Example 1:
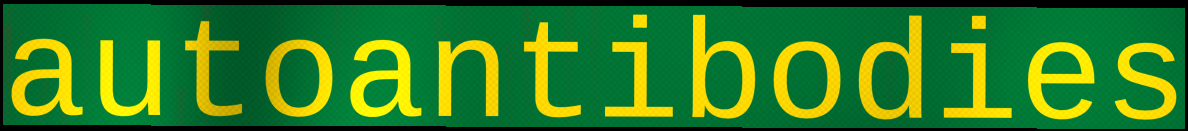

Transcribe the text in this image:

autoantibodies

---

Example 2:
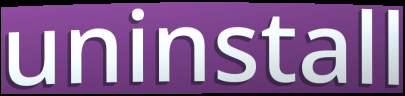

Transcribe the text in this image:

uninstall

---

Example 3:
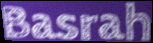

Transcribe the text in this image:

Basrah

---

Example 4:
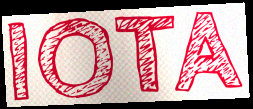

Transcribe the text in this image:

IOTA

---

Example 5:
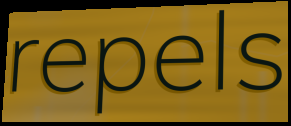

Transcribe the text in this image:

repels